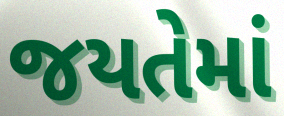
જયતેમાં